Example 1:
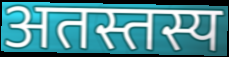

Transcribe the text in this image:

अतस्तस्य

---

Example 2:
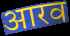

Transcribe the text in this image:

आरव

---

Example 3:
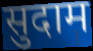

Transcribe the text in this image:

सुदाम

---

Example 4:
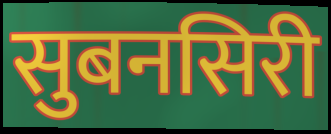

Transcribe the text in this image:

सुबनसिरी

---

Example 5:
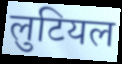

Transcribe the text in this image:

लुटियल